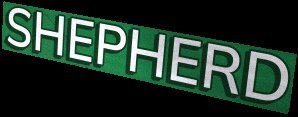
SHEPHERD